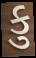
કુ